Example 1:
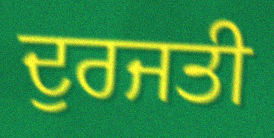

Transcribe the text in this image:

ਦੁਰਜਤੀ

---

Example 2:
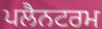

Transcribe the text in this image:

ਪਲੈਨਟਰਮ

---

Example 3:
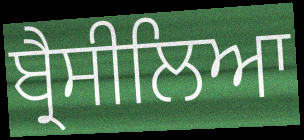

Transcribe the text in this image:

ਬ੍ਰੈਸੀਲਿਆ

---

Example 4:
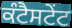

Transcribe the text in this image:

ਕੰਟੈਸਟੇਂਟ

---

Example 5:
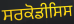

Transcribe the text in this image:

ਸਰਕੋਡੀਸਿਸ